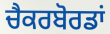
ਚੈਕਰਬੋਰਡਾਂ